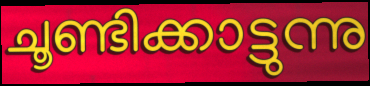
ചൂണ്ടിക്കാട്ടുന്നു